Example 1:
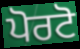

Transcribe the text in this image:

ਪੋਰਟੋ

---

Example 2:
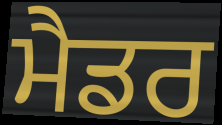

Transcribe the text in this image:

ਮੈਡਰ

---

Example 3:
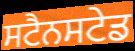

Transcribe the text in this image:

ਸਟੈਨਸਟੇਡ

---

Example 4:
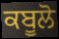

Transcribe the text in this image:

ਕਬੂਲੋ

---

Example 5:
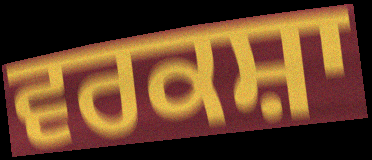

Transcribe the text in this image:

ਵਰਕਸ਼ਾ